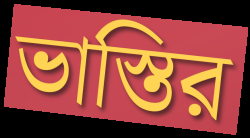
ভাস্তির